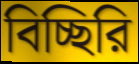
বিচ্ছিরি